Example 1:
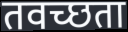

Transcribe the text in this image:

तवच्छता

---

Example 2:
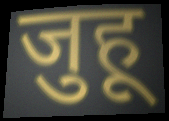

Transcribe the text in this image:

जुहू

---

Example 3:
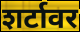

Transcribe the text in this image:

शर्टावर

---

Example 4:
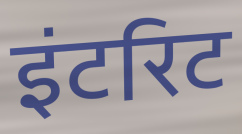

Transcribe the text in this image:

इंटरिट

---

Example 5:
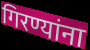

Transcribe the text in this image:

गिरण्यांना